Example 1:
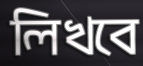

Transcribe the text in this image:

লিখবে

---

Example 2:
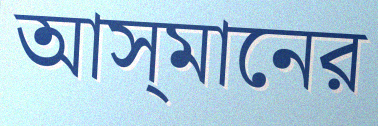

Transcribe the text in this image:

আস্‌মানের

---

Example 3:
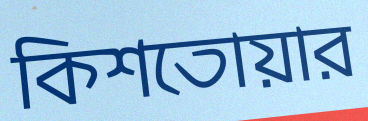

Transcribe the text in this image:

কিশতোয়ার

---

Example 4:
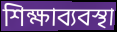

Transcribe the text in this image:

শিক্ষাব্যবস্থা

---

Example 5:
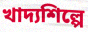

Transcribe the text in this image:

খাদ্যশিল্পে